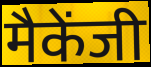
मैकेंजी